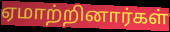
ஏமாற்றினார்கள்